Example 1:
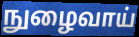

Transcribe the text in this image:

நுழைவாய்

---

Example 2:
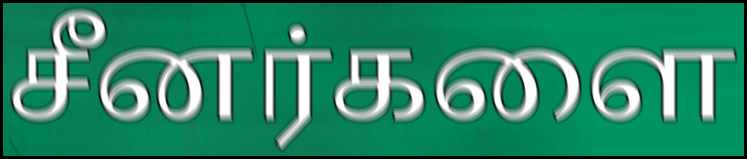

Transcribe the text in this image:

சீனர்களை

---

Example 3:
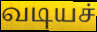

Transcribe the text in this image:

வடியச்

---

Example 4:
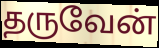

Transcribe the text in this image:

தருவேன்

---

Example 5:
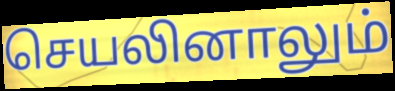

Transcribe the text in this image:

செயலினாலும்